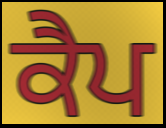
ਕੈਪ